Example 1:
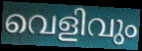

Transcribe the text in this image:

വെളിവും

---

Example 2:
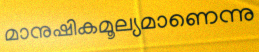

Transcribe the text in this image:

മാനുഷികമൂല്യമാണെന്നു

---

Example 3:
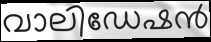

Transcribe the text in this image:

വാലിഡേഷൻ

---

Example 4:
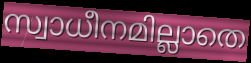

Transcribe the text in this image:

സ്വാധീനമില്ലാതെ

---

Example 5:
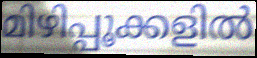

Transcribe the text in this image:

മിഴിപ്പൂക്കളിൽ